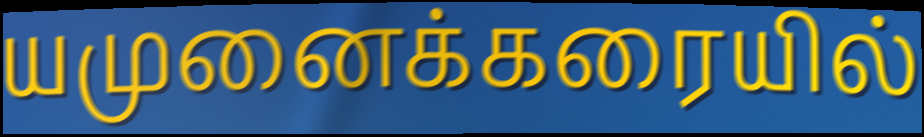
யமுனைக்கரையில்